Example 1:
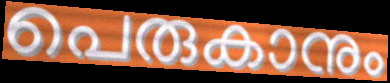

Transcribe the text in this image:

പെരുകാനും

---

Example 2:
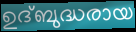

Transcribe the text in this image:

ഉദ്ബുദ്ധരായ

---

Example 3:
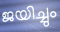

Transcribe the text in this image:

ജയിച്ചും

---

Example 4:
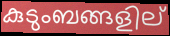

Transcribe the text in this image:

കുടുംബങ്ങളില്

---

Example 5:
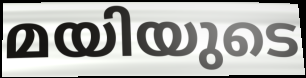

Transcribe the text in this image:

മയിയുടെ